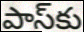
పాస్‌కు